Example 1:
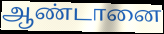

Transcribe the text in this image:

ஆண்டானை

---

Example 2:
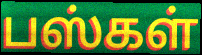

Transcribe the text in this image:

பஸ்கள்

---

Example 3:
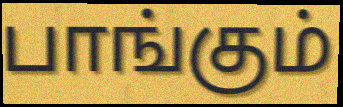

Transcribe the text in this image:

பாங்கும்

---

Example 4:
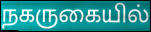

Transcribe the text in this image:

நகருகையில்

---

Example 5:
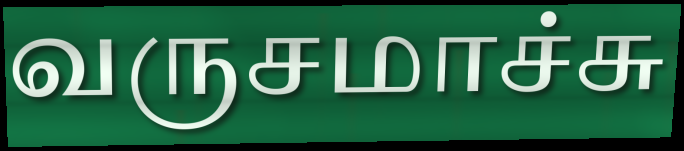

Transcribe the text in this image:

வருசமாச்சு